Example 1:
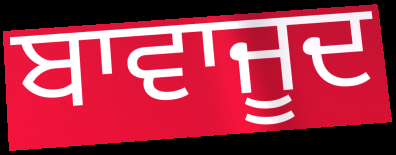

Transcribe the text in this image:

ਬਾਵਾਜੂਦ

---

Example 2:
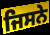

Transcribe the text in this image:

ਜਿਸਨੇ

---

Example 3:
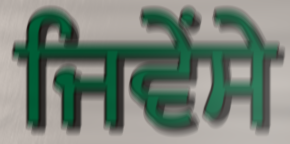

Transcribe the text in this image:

ਜਿਵੇਂਸੇ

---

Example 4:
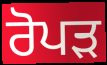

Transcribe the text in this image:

ਰੋਪੜ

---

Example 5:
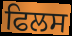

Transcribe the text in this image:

ਫਿਲਸ